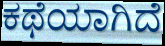
ಕಥೆಯಾಗಿದೆ